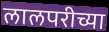
लालपरीच्या